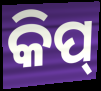
କିପ୍